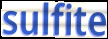
sulfite